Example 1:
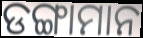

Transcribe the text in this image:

ଡଙ୍ଗାମାନ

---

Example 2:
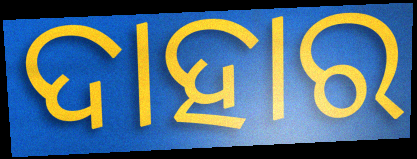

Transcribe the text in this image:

ଦାହାର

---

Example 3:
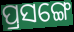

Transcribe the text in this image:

ପ୍ରସଙ୍ଗେ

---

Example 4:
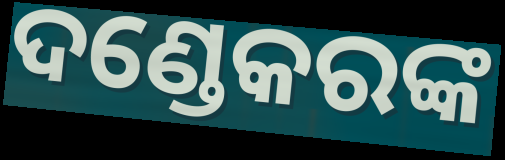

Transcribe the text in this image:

ଦଣ୍ଡେକରଙ୍କ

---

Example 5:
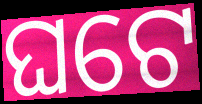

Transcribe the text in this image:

ଘଟେ